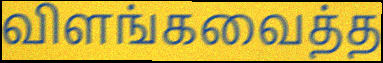
விளங்கவைத்த